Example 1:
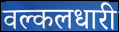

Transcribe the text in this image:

वल्कलधारी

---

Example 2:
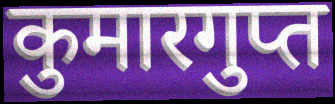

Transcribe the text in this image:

कुमारगुप्त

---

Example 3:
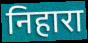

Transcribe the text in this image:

निहारा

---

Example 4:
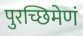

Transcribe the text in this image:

पुरच्छिमेणं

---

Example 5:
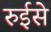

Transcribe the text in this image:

रुईसे